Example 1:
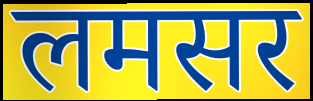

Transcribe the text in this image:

लमसर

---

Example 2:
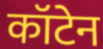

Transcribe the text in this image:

कॉटेन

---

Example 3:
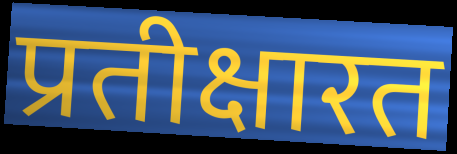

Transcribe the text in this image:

प्रतीक्षारत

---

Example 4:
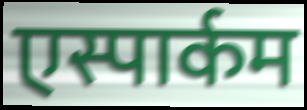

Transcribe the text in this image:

एस्पार्कम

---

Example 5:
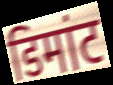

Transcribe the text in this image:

डिमांट